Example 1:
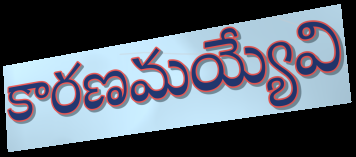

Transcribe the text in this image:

కారణమయ్యేవి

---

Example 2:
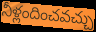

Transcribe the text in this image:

నీళ్లందించవచ్చు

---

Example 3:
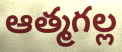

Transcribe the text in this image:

ఆత్మగల్ల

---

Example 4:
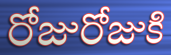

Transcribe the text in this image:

రోజురోజుకి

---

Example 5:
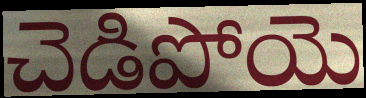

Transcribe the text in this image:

చెడిపోయె